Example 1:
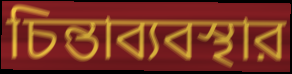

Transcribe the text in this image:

চিন্তাব্যবস্থার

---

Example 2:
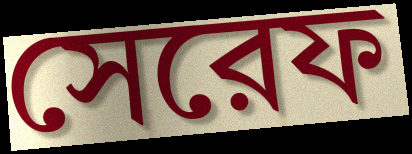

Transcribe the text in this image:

সেরেফ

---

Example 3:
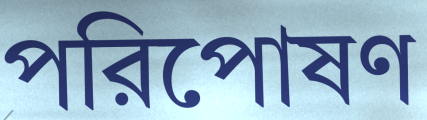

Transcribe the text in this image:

পরিপোষণ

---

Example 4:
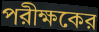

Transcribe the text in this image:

পরীক্ষকের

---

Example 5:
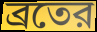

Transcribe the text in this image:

ব্রতের